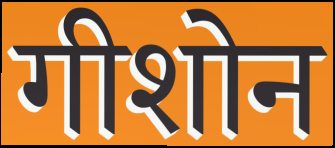
गीशोन